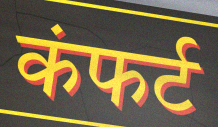
कंफर्ट